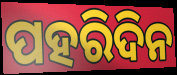
ପହରିଦିନ